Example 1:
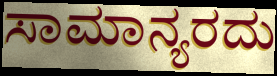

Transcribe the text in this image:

ಸಾಮಾನ್ಯರದು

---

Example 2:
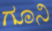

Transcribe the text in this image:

ಗೂನಿ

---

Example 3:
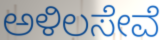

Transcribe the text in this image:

ಅಳಿಲಸೇವೆ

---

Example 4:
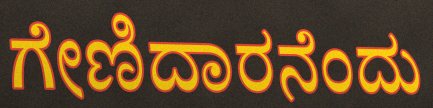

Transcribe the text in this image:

ಗೇಣಿದಾರನೆಂದು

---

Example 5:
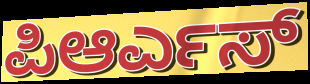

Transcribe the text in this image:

ಪಿಆರ್ಎಸ್